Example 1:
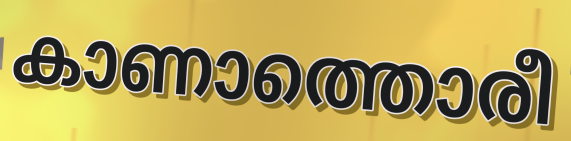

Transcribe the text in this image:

കാണാത്തൊരീ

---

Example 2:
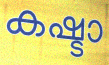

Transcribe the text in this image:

കഷ്ടാ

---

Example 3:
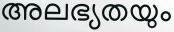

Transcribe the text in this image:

അലഭ്യതയും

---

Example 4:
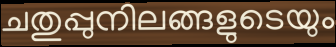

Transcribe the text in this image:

ചതുപ്പുനിലങ്ങളുടെയും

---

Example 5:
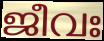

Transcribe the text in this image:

ജീവഃ